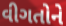
વીગતોને